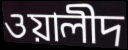
ওয়ালীদ